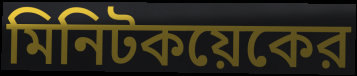
মিনিটকয়েকের